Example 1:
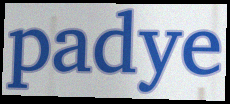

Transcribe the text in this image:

padye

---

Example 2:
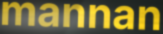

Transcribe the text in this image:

mannan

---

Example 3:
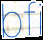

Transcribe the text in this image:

bfi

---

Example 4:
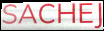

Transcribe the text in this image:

SACHEJ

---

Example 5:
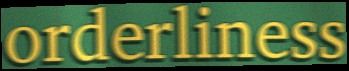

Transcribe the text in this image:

orderliness